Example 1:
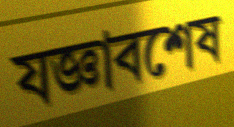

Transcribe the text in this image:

যজ্ঞাবশেষ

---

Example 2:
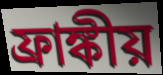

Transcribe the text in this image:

ফ্রাঙ্কীয়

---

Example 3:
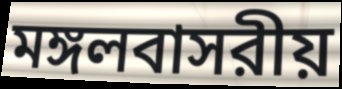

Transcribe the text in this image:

মঙ্গলবাসরীয়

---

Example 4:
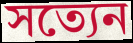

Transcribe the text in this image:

সত্যেন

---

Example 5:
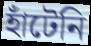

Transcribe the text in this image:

হাঁটেনি